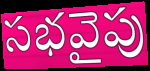
సభవైపు